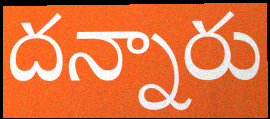
దన్నారు